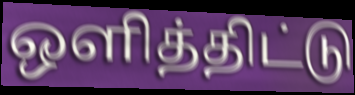
ஒளித்திட்டு